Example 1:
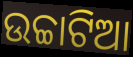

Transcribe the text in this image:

ଉଚ୍ଚାଟିଆ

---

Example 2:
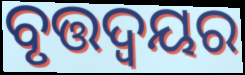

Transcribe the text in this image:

ବୃତ୍ତଦ୍ଵୟର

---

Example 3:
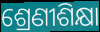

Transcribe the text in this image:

ଶ୍ରେଣୀଶିକ୍ଷା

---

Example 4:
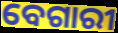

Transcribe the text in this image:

ବେଗାରୀ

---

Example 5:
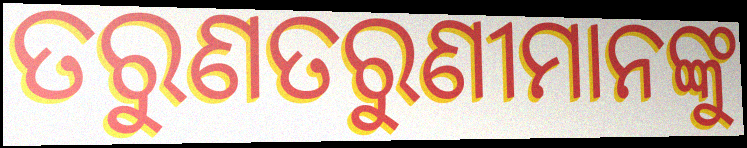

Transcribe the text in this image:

ତରୁଣତରୁଣୀମାନଙ୍କୁ